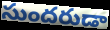
సుందరుడా